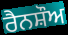
ਰੈਨਸ਼ੌਅ